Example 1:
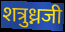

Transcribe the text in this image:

शत्रुध्नजी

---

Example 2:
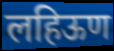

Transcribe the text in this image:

लहिऊण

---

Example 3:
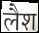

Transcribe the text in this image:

लैश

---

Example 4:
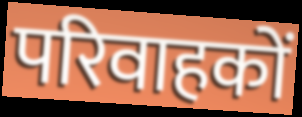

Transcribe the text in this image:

परिवाहकों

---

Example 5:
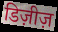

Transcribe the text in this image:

डिज़ीज़